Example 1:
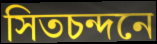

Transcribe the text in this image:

সিতচন্দনে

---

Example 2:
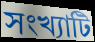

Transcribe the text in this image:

সংখ্যাটি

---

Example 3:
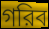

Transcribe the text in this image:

গরিব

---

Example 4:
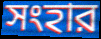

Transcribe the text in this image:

সংহার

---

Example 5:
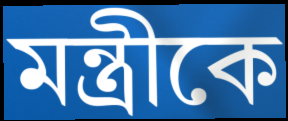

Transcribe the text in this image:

মন্ত্রীকে